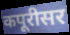
कपूरीसर